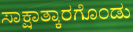
ಸಾಕ್ಷಾತ್ಕಾರಗೊಂಡು